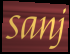
sanj